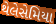
થેલેસેમિયા